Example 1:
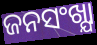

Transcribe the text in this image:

ଜନସଂଖ୍ଯା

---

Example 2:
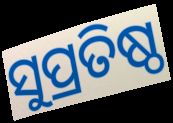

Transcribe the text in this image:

ସୁପ୍ରତିଷ୍ଠ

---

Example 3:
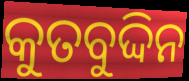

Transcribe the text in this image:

କୁତବୁଦ୍ଦିନ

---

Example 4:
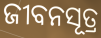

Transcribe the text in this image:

ଜୀବନସୂତ୍ର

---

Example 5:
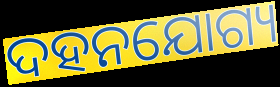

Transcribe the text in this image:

ଦହନଯୋଗ୍ୟ